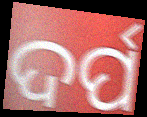
ଦର୍ପ